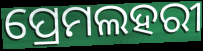
ପ୍ରେମଲହରୀ